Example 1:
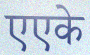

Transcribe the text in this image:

एएके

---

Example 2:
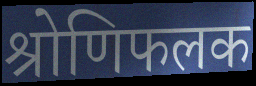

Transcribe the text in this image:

श्रोणिफलक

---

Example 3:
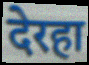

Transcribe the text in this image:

देरहा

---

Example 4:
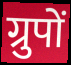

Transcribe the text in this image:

ग्रुपों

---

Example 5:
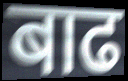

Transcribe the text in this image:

बाढ